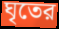
ঘৃতের